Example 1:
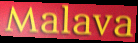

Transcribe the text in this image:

Malava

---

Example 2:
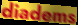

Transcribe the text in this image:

diadems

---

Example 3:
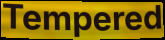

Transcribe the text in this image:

Tempered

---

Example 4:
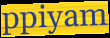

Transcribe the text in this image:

ppiyam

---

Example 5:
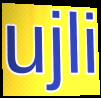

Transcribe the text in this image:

ujli